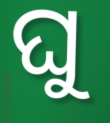
ଘୁ